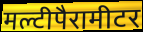
मल्टीपैरामीटर